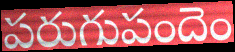
పరుగుపందెం